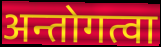
अन्तोगत्वा